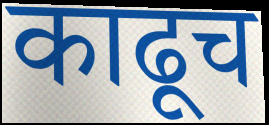
काढूच